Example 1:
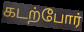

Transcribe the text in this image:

கடற்போர்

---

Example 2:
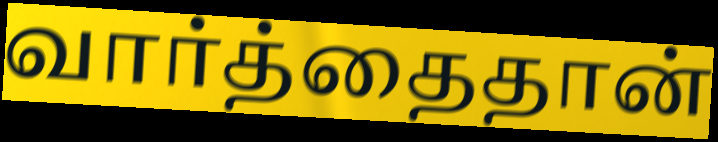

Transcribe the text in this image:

வார்த்தைதான்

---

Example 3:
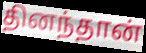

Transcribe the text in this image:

தினந்தான்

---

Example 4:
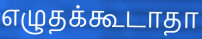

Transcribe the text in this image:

எழுதக்கூடாதா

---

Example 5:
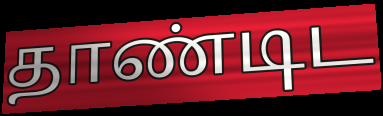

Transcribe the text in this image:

தாண்டிட